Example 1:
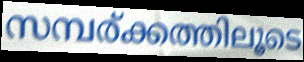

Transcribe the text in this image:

സമ്പര്ക്കത്തിലൂടെ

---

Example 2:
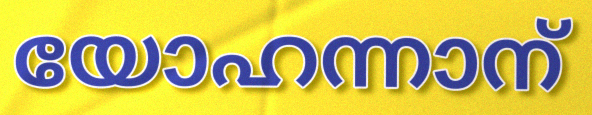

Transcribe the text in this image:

യോഹന്നാന്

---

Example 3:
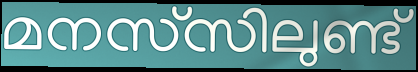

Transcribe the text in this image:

മനസ്‌സിലുണ്ട്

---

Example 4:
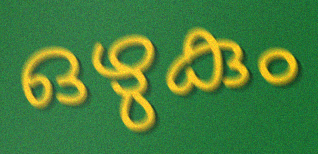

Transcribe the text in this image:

ഒഴുകും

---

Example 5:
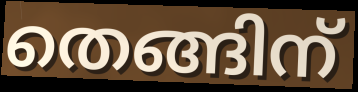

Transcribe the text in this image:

തെങ്ങിന്